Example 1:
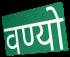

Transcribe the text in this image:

वण्यो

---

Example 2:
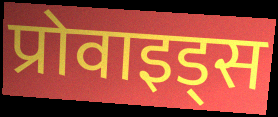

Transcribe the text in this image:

प्रोवाइड्स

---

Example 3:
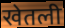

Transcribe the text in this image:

खेतली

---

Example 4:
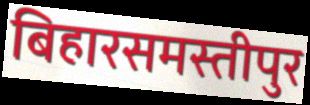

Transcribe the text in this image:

बिहारसमस्तीपुर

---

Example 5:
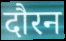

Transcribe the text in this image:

दौरन